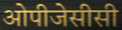
ओपीजेसीसी